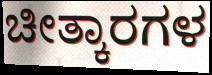
ಚೀತ್ಕಾರಗಳ